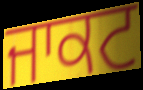
ਜਾਕਟ